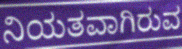
ನಿಯತವಾಗಿರುವ